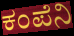
ಕಂಪೆನಿ